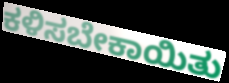
ಕಳಿಸಬೇಕಾಯಿತು